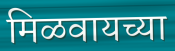
मिळवायच्या